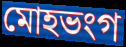
মোহভংগ